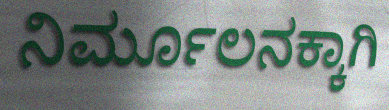
ನಿರ್ಮೂಲನಕ್ಕಾಗಿ